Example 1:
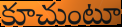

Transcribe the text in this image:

కూచుంటూ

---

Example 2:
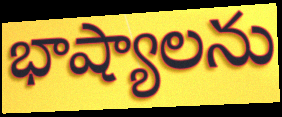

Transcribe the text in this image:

భాష్యాలను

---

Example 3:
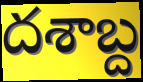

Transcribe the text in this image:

దశాబ్ద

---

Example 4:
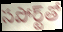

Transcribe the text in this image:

సపోర్ట్‌తో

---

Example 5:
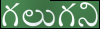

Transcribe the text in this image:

గలుగని